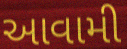
આવામી